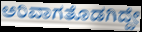
ಅರಿವಾಗತೊಡಗಿದ್ದೇ